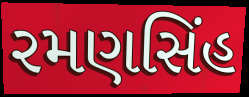
રમણસિંહ